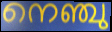
നെഞ്ചു